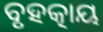
ବୃହତ୍କାୟ